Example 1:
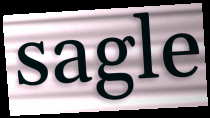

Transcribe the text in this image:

sagle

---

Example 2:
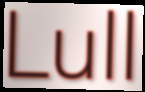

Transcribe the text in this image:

Lull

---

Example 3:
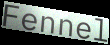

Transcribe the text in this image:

Fennel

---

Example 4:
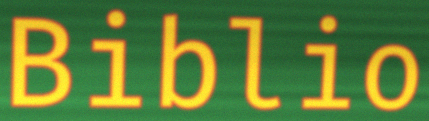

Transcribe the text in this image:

Biblio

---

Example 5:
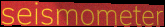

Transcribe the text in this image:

seismometer